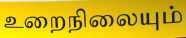
உறைநிலையும்